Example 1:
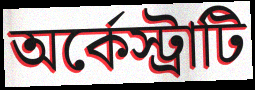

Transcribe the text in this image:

অর্কেস্ট্রাটি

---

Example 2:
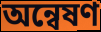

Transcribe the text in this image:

অন্বেষণ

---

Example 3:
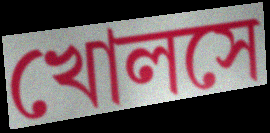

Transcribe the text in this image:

খোলসে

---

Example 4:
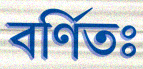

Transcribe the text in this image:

বর্ণিতঃ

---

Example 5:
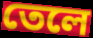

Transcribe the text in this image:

তেলে